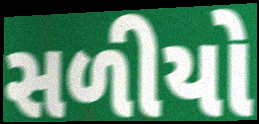
સળીયો